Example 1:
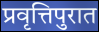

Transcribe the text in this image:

प्रवृत्तिपुरात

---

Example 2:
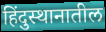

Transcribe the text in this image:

हिंदुस्थानातील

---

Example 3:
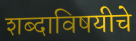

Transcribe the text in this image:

शब्दाविषयीचे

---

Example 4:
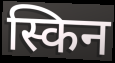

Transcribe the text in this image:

स्किन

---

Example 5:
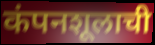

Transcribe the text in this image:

कंपनशूलाची